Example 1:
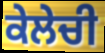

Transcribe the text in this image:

ਕੇਲੇਚੀ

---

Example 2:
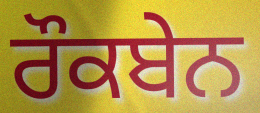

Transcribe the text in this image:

ਰੌਕਬੇਨ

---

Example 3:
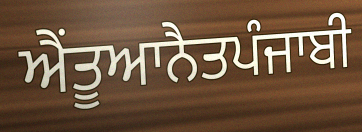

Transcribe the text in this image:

ਐਂਤੂਆਨੈਤਪੰਜਾਬੀ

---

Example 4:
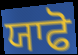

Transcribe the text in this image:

ਯਾਫੋ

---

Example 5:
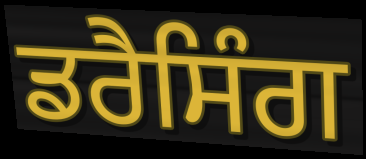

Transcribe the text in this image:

ਡਰੈਸਿੰਗ